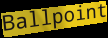
Ballpoint